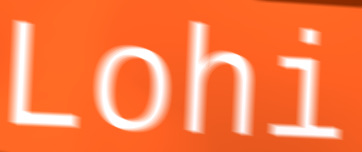
Lohi